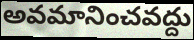
అవమానించవద్దు